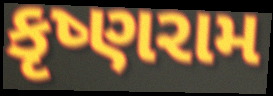
કૃષ્ણરામ